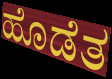
ಹೊಡೆತ